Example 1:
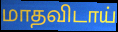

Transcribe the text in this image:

மாதவிடாய்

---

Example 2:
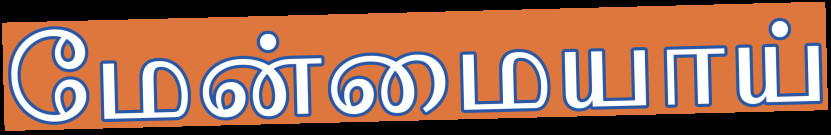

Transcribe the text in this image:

மேன்மையாய்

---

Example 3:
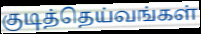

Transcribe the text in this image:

குடித்தெய்வங்கள்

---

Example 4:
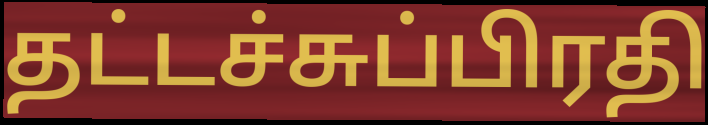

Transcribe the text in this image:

தட்டச்சுப்பிரதி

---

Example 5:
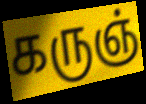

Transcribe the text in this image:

கருஞ்